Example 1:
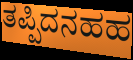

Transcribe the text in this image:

ತಪ್ಪಿದನಹಹ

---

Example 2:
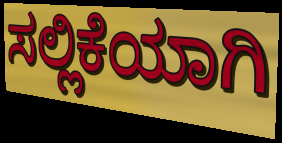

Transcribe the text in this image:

ಸಲ್ಲಿಕೆಯಾಗಿ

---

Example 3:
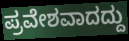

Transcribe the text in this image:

ಪ್ರವೇಶವಾದದ್ದು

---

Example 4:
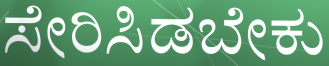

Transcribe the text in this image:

ಸೇರಿಸಿಡಬೇಕು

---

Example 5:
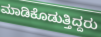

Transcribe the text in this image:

ಮಾಡಿಕೊಡುತ್ತಿದ್ದರು